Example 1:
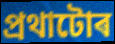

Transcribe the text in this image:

প্ৰথাটোৰ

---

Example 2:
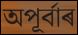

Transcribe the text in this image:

অপূৰ্বাৰ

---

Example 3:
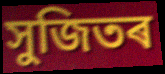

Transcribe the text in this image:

সুজিতৰ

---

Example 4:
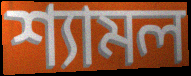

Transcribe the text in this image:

শ্যামল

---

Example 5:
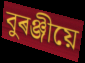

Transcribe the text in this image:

বুৰঞ্জীয়ে